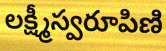
లక్ష్మీస్వరూపిణి